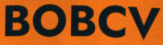
BOBCV